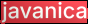
javanica